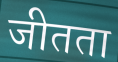
जीतता